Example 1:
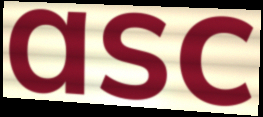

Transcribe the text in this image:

asc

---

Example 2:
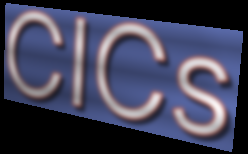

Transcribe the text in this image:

CICs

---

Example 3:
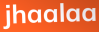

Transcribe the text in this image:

jhaalaa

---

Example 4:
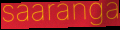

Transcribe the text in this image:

saaranga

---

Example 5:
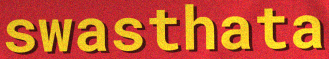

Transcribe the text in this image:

swasthata